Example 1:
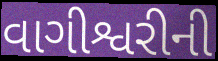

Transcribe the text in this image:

વાગીશ્વરીની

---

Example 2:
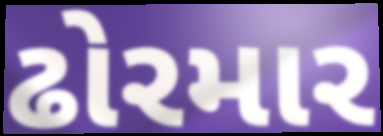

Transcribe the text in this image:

ઢોરમાર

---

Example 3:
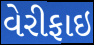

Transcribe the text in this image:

વેરીફાઇ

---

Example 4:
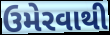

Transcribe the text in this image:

ઉમેરવાથી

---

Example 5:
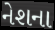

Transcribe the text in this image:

નેશના